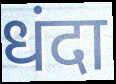
धंदा